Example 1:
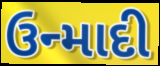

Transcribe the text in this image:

ઉન્માદી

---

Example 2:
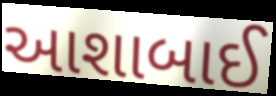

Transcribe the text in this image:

આશાબાઈ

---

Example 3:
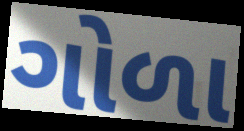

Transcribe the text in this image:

ગોળા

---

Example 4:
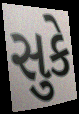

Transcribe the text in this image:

સુકે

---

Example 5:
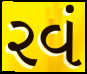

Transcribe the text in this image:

રવં